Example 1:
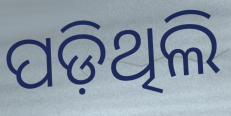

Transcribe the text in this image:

ପଡ଼ିଥିଲି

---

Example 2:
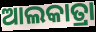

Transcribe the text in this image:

ଆଲକାତ୍ରା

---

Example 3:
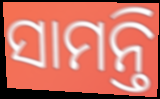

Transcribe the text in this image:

ସାମନ୍ତି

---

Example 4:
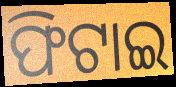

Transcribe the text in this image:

ଫିଟାଇ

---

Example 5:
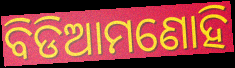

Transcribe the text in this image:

ବିଡିଆମଣୋହି